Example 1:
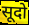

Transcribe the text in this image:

सूदो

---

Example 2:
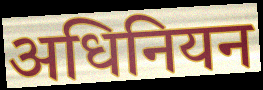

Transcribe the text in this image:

अधिनियन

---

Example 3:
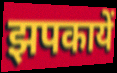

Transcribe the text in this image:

झपकायें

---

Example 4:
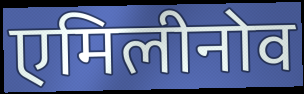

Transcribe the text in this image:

एमिलीनोव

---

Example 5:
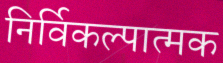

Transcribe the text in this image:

निर्विकल्पात्मक